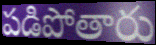
పడిపోతారు